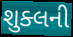
શુક્લની